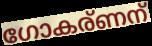
ഗോകര്ണന്